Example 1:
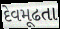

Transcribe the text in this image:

દેવમૂઢતા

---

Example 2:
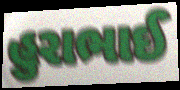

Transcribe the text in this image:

હુરાભાઈ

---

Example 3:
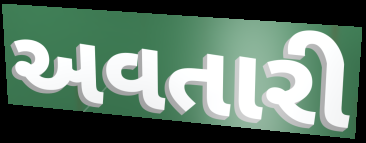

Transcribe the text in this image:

અવતારી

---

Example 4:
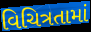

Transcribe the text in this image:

વિચિત્રતામાં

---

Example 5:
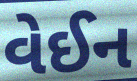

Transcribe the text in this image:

વેઈન